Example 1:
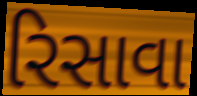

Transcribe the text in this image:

રિસાવા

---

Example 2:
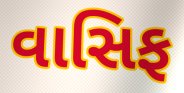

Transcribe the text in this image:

વાસિફ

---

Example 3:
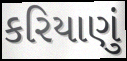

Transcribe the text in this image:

કરિયાણું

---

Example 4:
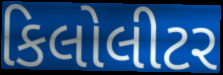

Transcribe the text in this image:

કિલોલીટર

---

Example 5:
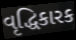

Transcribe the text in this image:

વૃદ્ધિકારક